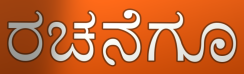
ರಚನೆಗೂ